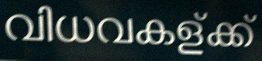
വിധവകള്ക്ക്